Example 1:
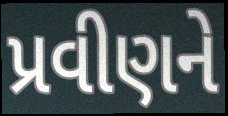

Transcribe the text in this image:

પ્રવીણને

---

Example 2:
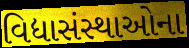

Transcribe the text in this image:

વિદ્યાસંસ્થાઓના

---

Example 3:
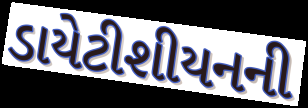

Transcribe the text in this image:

ડાયેટીશીયનની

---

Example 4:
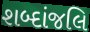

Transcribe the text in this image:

શબ્દાંજલિ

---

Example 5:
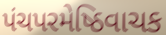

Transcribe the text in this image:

પંચપરમેષ્ઠિવાચક